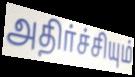
அதிர்ச்சியும்